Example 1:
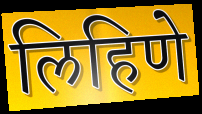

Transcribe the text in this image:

लिहिणे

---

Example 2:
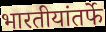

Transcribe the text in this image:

भारतीयांतर्फे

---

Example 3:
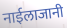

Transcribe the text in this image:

नाईलाजानी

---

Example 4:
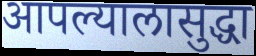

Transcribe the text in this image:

आपल्यालासुद्धा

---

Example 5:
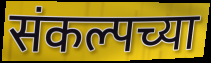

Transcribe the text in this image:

संकल्पच्या